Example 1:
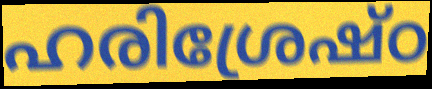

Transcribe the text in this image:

ഹരിശ്രേഷ്ഠ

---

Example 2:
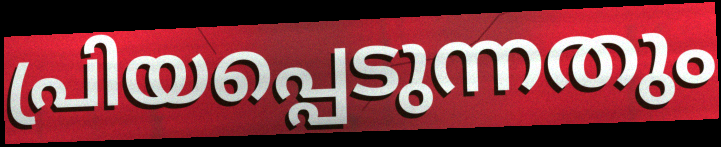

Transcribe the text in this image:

പ്രിയപ്പെടുന്നതും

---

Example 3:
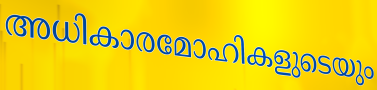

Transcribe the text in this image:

അധികാരമോഹികളുടെയും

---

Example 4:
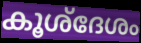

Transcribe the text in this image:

കൂശ്ദേശം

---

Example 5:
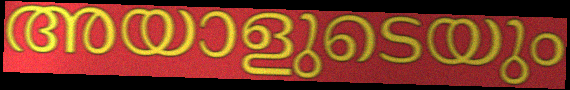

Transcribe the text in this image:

അയാളുടെയും